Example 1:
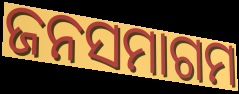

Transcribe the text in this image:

ଜନସମାଗମ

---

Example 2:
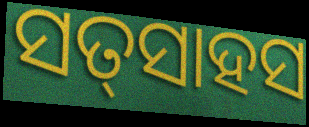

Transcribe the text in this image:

ସତ୍‍ସାହସ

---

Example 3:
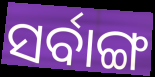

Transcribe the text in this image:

ସର୍ବାଙ୍ଗ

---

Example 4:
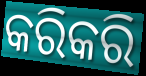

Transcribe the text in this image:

କରିକରି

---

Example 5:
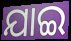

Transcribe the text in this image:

ଯାଇ